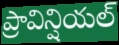
ప్రావిన్షియల్